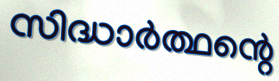
സിദ്ധാർത്ഥന്റെ